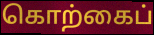
கொற்கைப்